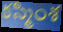
కస్మింశ